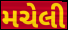
મચેલી